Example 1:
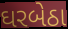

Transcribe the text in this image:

ઘરબેઠા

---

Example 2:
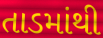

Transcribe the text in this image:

તાડમાંથી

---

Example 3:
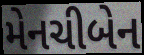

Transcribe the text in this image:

મેનચીબેન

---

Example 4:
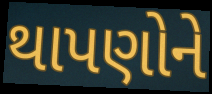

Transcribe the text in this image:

થાપણોને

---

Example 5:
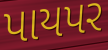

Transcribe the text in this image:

પાયપર